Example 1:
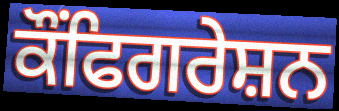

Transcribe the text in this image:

ਕੌਂਫਿਗਰੇਸ਼ਨ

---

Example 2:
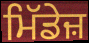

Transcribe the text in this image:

ਮਿੱਡੇਜ਼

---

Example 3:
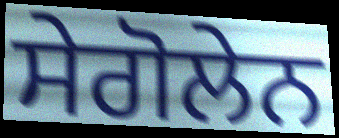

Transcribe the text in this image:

ਸੇਗੋਲੇਨ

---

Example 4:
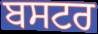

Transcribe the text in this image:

ਬਸਟਰ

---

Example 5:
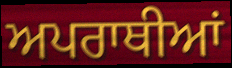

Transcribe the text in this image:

ਅਪਰਾਥੀਆਂ